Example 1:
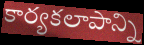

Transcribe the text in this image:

కార్యకలాపాన్ని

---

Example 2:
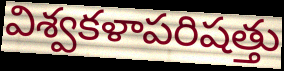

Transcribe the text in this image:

విశ్వకళాపరిషత్తు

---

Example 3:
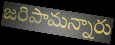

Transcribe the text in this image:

జరిపామన్నారు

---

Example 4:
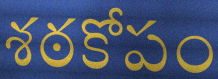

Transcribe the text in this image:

శఠకోపం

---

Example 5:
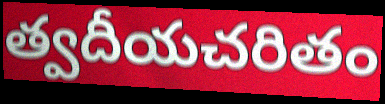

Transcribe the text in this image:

త్వదీయచరితం